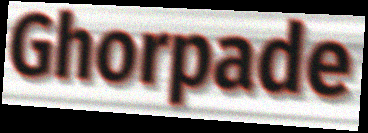
Ghorpade